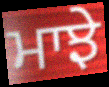
ਮਾਝੇ